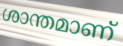
ശാന്തമാണ്